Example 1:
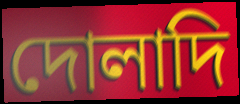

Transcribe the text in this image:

দোলাদি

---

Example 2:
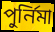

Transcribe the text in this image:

পুর্নিমা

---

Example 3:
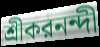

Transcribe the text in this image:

শ্রীকরনন্দী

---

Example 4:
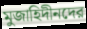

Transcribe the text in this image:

মুজাহিদীনদের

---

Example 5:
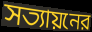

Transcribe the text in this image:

সত্যায়নের